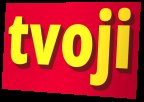
tvoji